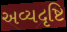
અવ્યદૃષ્ટિ